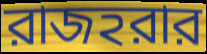
রাজহরার